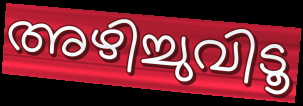
അഴിച്ചുവിടൂ